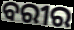
ବରୀର